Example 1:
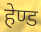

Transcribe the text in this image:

हेण्ड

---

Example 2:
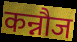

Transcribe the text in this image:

कन्नौज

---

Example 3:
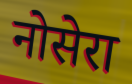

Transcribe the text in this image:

नोसेरा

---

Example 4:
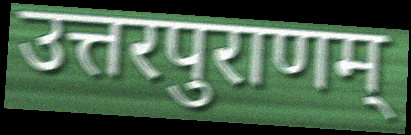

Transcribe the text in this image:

उत्तरपुराणम्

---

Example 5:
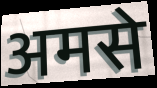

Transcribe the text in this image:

अमसे